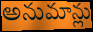
అనుమాన్లు